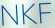
NKF